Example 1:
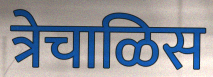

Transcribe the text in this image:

त्रेचाळिस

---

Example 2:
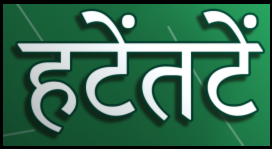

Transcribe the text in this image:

हटेंतटें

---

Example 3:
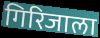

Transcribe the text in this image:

गिरिजाला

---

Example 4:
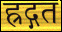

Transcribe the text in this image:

ह्रद्गत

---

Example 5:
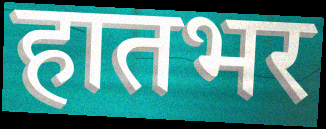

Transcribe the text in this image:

हातभर